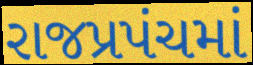
રાજપ્રપંચમાં